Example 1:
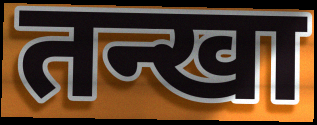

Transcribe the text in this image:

तन्खा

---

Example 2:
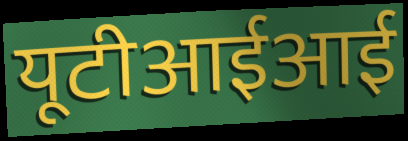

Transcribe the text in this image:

यूटीआईआई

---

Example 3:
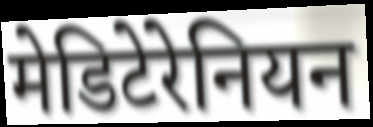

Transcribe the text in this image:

मेडिटेरेनियन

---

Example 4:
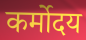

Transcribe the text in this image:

कर्मोदय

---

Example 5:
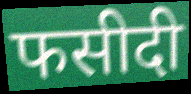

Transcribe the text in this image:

फसीदी